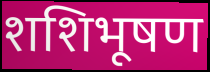
शशिभूषण